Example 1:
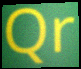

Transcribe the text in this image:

Qr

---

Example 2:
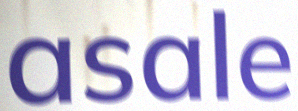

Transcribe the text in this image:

asale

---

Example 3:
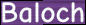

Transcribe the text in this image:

Baloch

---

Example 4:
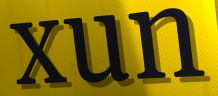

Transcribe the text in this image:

xun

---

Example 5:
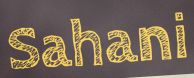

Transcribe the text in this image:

Sahani